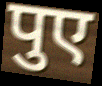
पुए